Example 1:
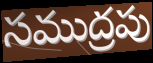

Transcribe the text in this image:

సముద్రపు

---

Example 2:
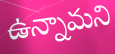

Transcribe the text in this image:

ఉన్నామని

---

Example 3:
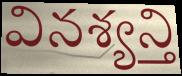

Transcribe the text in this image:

వినశ్యన్తి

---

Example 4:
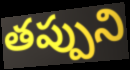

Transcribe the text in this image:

తప్పుని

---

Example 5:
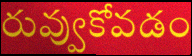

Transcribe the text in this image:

రువ్వుకోవడం